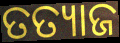
ତତ୍ୟାଜ